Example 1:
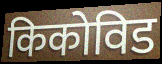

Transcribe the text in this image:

किकोविड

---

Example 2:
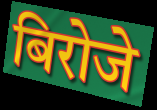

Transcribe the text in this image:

बिरोजे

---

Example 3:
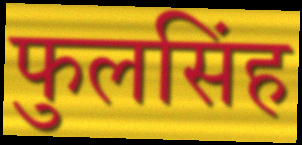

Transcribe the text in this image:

फुलसिंह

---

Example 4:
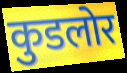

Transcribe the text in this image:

कुडलोर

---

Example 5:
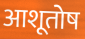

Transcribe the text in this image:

आशूतोष